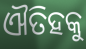
ଐତିହକୁ